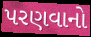
પરણવાનો